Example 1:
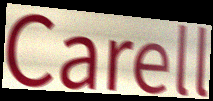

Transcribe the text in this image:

Carell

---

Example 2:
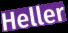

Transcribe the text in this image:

Heller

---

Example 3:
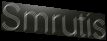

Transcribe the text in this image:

Smrutis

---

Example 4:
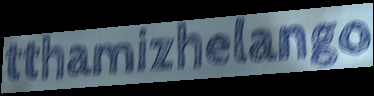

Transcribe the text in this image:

tthamizhelango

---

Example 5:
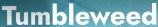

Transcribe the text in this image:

Tumbleweed